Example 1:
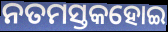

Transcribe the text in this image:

ନତମସ୍ତକହୋଇ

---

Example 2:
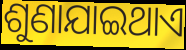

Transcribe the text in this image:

ଶୁଣାଯାଇଥାଏ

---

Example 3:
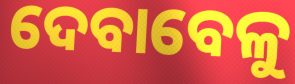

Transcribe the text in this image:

ଦେବାବେଳୁ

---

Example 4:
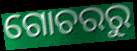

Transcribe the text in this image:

ଗୋଚରରୁ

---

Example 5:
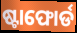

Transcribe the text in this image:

ଷ୍ଟାଫୋର୍ଡ